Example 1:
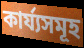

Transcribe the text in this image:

কাৰ্য্যসমূহ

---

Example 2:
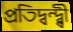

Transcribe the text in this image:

প্ৰতিদ্বন্দ্ব্বী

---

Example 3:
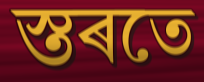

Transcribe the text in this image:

স্তৰতে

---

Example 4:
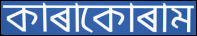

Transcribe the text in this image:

কাৰাকোৰাম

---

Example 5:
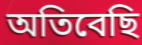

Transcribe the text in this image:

অতিবেছি